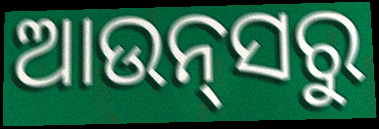
ଆଉନ୍‍ସରୁ